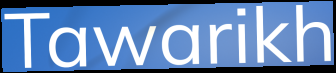
Tawarikh